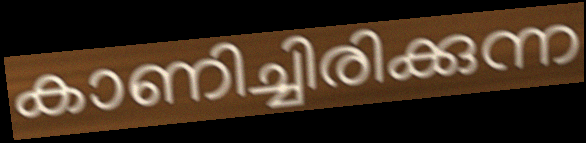
കാണിച്ചിരിക്കുന്ന